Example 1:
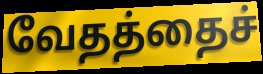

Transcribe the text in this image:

வேதத்தைச்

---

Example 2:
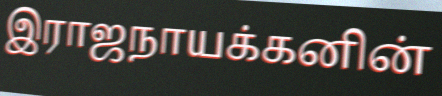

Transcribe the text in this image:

இராஜநாயக்கனின்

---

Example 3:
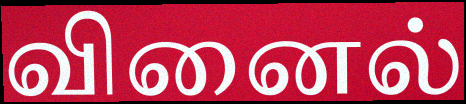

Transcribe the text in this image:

வினைல்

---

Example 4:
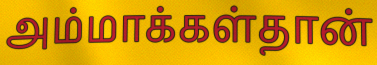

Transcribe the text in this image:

அம்மாக்கள்தான்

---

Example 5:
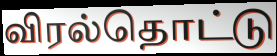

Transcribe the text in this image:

விரல்தொட்டு